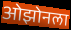
ओझोनला